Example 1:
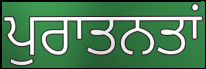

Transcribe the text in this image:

ਪੁਰਾਤਨਤਾਂ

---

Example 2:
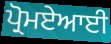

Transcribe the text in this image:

ਪ੍ਰੋਮਏਆਈ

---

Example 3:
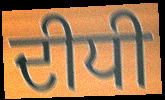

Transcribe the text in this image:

ਦੀਧੀ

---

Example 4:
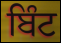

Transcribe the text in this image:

ਬਿੰਟ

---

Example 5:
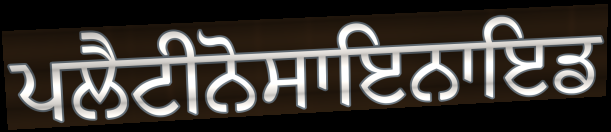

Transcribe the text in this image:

ਪਲੈਟੀਨੋਸਾਇਨਾਇਡ